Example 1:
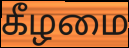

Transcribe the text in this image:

கீழமை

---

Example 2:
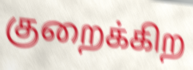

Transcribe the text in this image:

குறைக்கிற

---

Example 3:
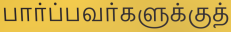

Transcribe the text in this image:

பார்ப்பவர்களுக்குத்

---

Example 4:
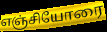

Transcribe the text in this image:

எஞ்சியோரை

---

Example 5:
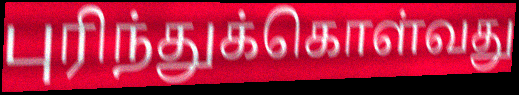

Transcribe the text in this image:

புரிந்துக்கொள்வது